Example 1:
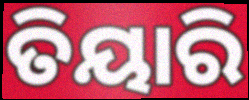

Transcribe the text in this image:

ତିୟାରି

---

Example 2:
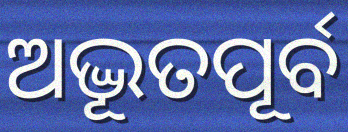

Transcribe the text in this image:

ଅଦ୍ଭୂତପୂର୍ବ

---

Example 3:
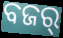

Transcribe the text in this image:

ବଜର୍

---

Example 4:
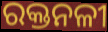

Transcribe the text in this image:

ରକ୍ତନଳୀ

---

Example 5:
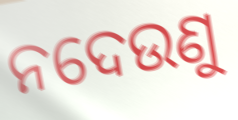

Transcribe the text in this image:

ନଦେଉଣୁ